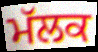
ਮੱਲਕ